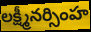
లక్ష్మీనర్సింహ